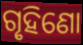
ଗୃହିଣୋ